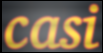
casi